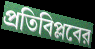
প্রতিবিপ্লবের